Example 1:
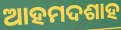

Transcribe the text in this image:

ଆହମଦଶାହ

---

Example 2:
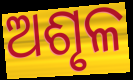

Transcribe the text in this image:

ଅଶୃଳ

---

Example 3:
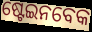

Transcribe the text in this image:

ଷ୍ଟେଇନବେକ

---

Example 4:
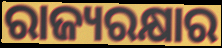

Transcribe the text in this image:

ରାଜ୍ୟରକ୍ଷାର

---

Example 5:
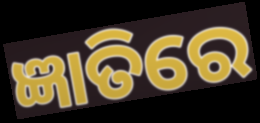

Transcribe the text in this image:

ଜ୍ଞାତିରେ